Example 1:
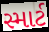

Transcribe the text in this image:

સ્માર્ટ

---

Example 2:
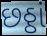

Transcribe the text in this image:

છઠ્ઠાં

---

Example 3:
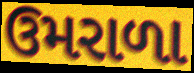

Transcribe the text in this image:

ઉમરાળા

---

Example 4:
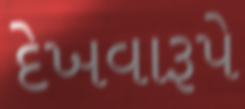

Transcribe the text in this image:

દેખવારૂપે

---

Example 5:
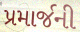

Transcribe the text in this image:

પ્રમાર્જની